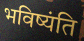
भविष्यंति